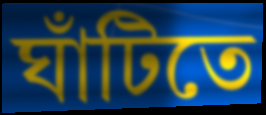
ঘাঁটিতে